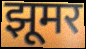
झूमर